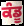
ਕੰਡੂ